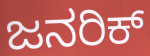
ಜನರಿಕ್